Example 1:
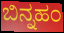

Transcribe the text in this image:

ಬಿನ್ನಹಂ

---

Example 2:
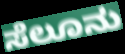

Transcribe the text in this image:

ಸೆಲೂನು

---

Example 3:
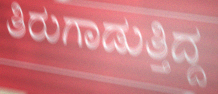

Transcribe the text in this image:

ತಿರುಗಾಡುತ್ತಿದ್ದ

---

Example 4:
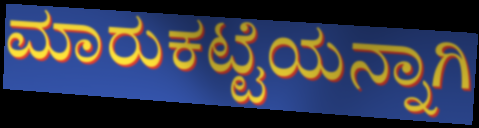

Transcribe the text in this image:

ಮಾರುಕಟ್ಟೆಯನ್ನಾಗಿ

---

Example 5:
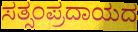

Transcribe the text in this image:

ಸತ್ಸಂಪ್ರದಾಯದ